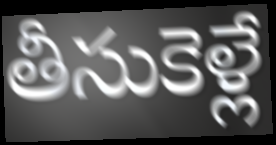
తీసుకెళ్లే